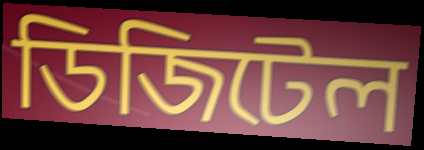
ডিজিটেল